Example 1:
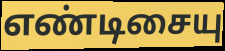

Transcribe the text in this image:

எண்டிசையு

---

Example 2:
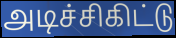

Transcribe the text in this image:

அடிச்சிகிட்டு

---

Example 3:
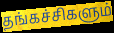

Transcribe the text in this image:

தங்கச்சிகளும்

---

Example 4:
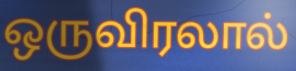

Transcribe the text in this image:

ஒருவிரலால்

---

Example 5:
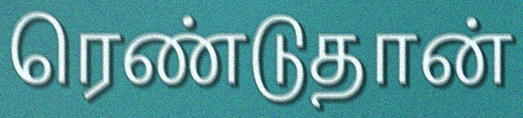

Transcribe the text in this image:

ரெண்டுதான்